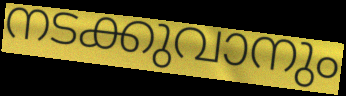
നടക്കുവാനും